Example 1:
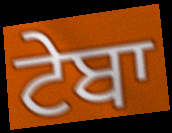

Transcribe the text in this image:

ਟੇਬਾ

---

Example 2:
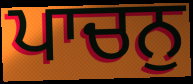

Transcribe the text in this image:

ਪਾਚਨੁ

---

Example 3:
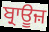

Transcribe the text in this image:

ਬ੍ਰਾਊਜ਼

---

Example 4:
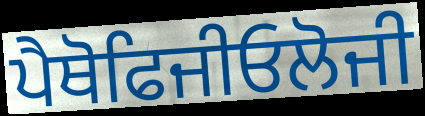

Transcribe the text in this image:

ਪੈਥੋਫਿਜੀਓਲੋਜੀ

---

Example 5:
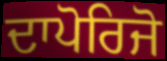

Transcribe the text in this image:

ਦਾਪੋਰਿਜੋ